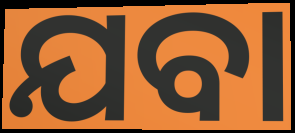
ଯବା